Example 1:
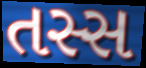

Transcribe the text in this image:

તસ્સ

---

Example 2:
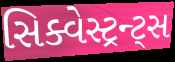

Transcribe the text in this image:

સિક્વેસ્ટ્રન્ટ્સ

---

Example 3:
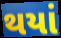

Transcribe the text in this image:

થયાં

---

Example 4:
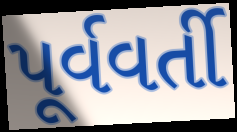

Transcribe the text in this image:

પૂર્વવર્તી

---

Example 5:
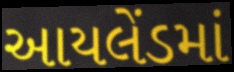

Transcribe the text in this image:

આયલેંડમાં